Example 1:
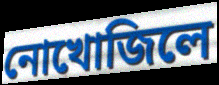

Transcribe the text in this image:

নোখোজিলে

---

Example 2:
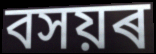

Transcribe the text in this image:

বসয়ৰ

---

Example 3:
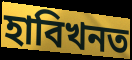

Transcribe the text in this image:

হাবিখনত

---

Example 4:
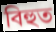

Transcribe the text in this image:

বিহুত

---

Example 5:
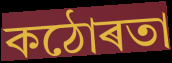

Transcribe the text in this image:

কঠোৰতা